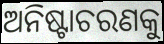
ଅନିଷ୍ଟାଚରଣକୁ